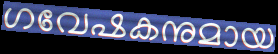
ഗവേഷകനുമായ